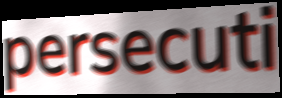
persecuti